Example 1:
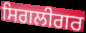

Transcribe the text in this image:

ਸਿਗਲੀਗਰ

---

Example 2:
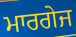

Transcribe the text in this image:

ਮਾਰਗੇਜ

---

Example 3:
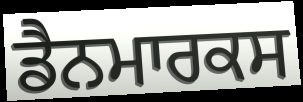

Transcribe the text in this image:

ਡੈਨਮਾਰਕਸ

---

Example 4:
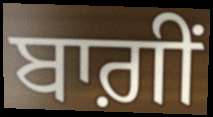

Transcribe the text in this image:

ਬਾਗ਼ੀਂ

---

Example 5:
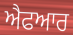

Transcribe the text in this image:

ਐਫਆਰ